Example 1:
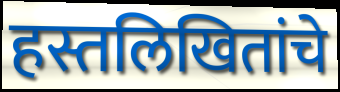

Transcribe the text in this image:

हस्तलिखितांचे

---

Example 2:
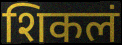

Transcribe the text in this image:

शिकलं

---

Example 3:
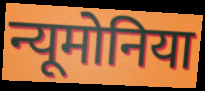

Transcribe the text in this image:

न्यूमोनिया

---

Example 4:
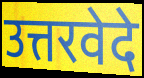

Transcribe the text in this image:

उत्तरवेदे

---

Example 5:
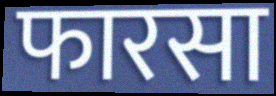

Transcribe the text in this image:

फारसा